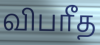
விபரீத